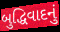
બુદ્ધિવાદનું